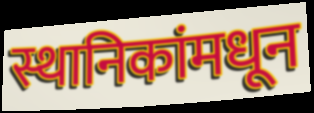
स्थानिकांमधून